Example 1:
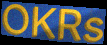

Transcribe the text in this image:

OKRs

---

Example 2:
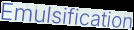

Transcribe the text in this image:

Emulsification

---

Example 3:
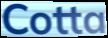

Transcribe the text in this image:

Cotta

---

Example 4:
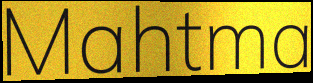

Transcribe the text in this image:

Mahtma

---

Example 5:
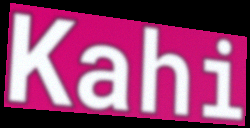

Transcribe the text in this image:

Kahi